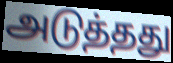
அடுத்தது